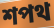
শপথ